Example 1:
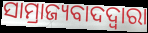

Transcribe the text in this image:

ସାମ୍ରାଜ୍ୟବାଦଦ୍ୱାରା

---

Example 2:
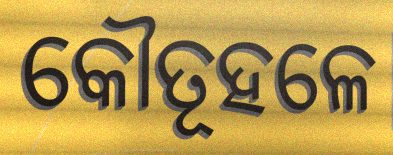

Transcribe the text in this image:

କୌତୂହଳେ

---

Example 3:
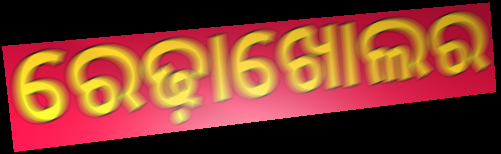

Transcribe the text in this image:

ରେଢ଼ାଖୋଲର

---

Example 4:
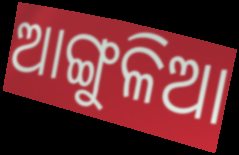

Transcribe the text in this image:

ଆଙ୍ଗୁଳିଆ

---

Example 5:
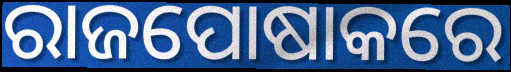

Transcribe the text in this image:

ରାଜପୋଷାକରେ